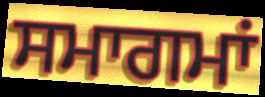
ਸਮਾਗਮਾਂ